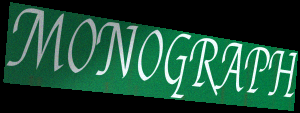
MONOGRAPH